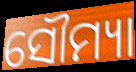
ସୌମ୍ୟା